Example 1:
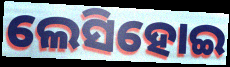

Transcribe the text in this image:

ଲେସିହୋଇ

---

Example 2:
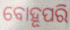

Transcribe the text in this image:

ବୋହୂପରି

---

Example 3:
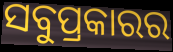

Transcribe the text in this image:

ସବୁପ୍ରକାରର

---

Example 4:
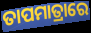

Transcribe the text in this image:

ତାପମାତ୍ରାରେ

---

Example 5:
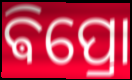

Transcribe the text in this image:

ଵିପ୍ରୋ